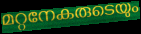
മറ്റനേകരുടെയും